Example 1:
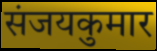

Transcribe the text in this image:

संजयकुमार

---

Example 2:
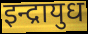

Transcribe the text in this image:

इन्द्रायुध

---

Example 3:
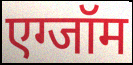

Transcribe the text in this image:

एग्जॉम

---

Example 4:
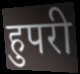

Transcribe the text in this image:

हुपरी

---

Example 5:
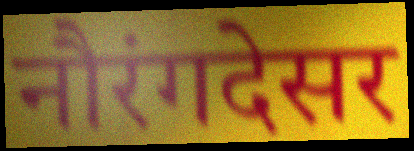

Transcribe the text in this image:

नौरंगदेसर